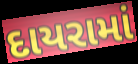
દાયરામાં